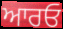
ਆਰਓ